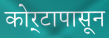
कोर्टापासून